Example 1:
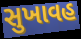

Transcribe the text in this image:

સુખાવહ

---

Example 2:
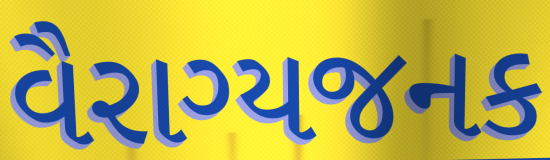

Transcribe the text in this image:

વૈરાગ્યજનક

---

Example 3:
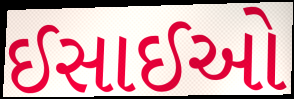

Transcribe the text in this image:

ઈસાઈઓ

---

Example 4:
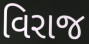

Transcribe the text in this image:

વિરાજ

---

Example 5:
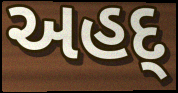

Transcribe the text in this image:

અહદ્